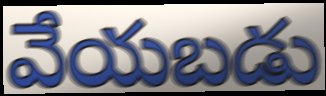
వేయబడు